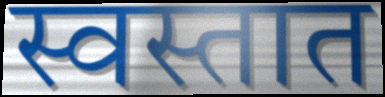
स्वस्तात